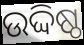
ଉଦ୍ଦିଷ୍ଠ